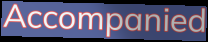
Accompanied